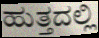
ಹುತ್ತದಲ್ಲಿ